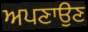
ਅਪਣਾਉਣ